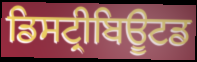
ਡਿਸਟ੍ਰੀਬਿਊਟਡ